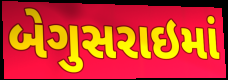
બેગુસરાઇમાં